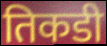
तिकडी